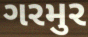
ગરમુર